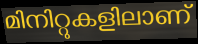
മിനിറ്റുകളിലാണ്